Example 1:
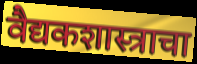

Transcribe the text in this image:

वैद्यकशास्त्राचा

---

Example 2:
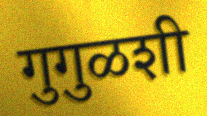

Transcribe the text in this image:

गुगुळशी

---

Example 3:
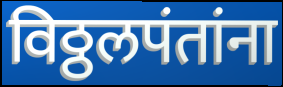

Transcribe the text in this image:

विठ्ठलपंतांना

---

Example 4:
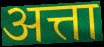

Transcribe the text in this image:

अत्ता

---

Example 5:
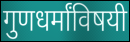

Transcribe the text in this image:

गुणधर्मांविषयी